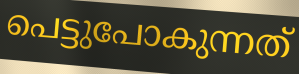
പെട്ടുപോകുന്നത്